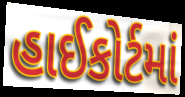
હાઈકોર્ટમાં